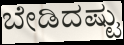
ಬೇಡಿದಷ್ಟು